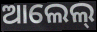
ଆଲେଲ୍